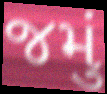
જમું